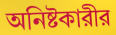
অনিষ্টকারীর